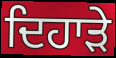
ਦਿਹਾਡ਼ੇ